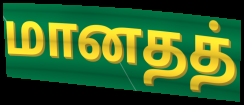
மானதத்